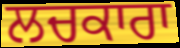
ਲਚਕਾਰਾ